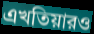
এখতিয়ারও